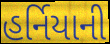
હર્નિયાની